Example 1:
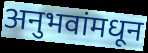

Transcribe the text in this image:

अनुभवांमधून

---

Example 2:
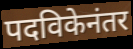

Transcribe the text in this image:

पदविकेनंतर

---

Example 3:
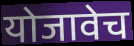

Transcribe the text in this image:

योजावेच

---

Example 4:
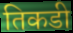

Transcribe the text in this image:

तिकडी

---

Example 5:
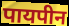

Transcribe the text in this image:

पायपीन